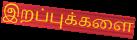
இறப்புக்களை